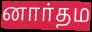
னார்தம